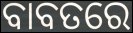
ବାବତରେ